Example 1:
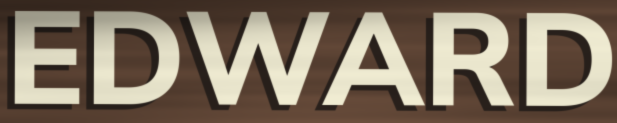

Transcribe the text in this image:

EDWARD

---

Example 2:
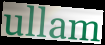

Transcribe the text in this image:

ullam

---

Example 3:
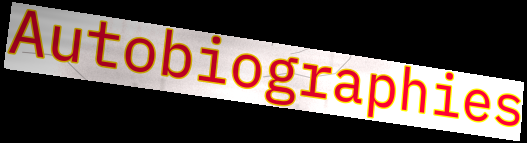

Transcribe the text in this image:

Autobiographies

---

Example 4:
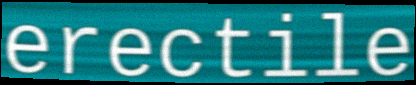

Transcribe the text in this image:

erectile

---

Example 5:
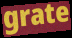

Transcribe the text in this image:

grate